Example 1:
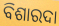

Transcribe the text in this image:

ବିଶାରଦା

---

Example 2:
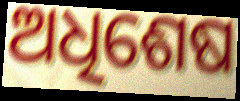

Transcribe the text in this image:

ଅଧିଶେଷ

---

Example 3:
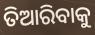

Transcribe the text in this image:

ତିଆରିବାକୁ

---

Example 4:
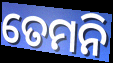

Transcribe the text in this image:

ତେମନି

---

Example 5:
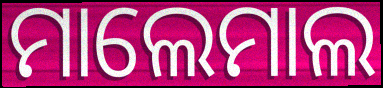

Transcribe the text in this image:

ମାଲେମାଲ